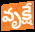
వృక్షే